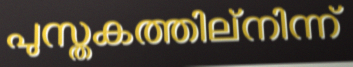
പുസ്തകത്തില്നിന്ന്